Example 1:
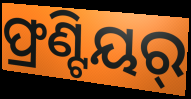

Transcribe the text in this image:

ଫ୍ରଣ୍ଟିୟର୍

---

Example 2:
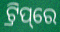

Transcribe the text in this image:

ଟ୍ରିପ୍‌ରେ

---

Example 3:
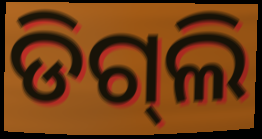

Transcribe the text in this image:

ଡିଗ୍‌ଲି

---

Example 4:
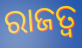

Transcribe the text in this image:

ରାଜତ୍ଵ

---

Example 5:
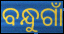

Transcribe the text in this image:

ବନ୍ଧୁଗାଁ